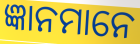
ଜ୍ଞାନମାନେ